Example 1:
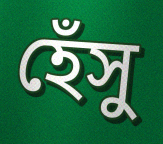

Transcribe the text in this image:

হেঁসু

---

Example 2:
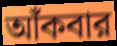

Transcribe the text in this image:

আঁকবার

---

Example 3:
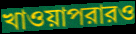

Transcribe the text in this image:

খাওয়াপরারও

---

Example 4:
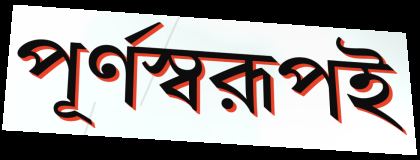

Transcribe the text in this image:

পূর্ণস্বরূপই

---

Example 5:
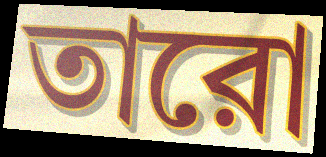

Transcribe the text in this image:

তারো